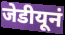
जेडीयूनं